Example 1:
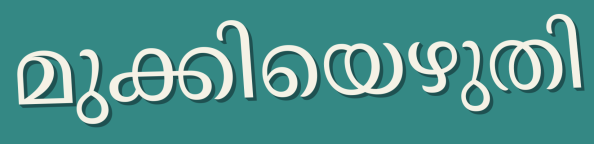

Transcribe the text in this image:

മുക്കിയെഴുതി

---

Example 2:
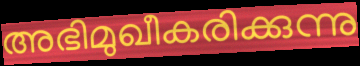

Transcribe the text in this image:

അഭിമുഖീകരിക്കുന്നു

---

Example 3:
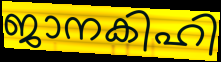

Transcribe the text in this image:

ജാനകിഹി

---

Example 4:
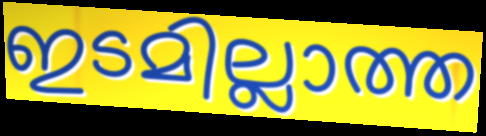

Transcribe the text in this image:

ഇടമില്ലാത്ത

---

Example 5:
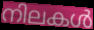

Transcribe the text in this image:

നിലകൾ